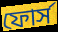
ফোর্স